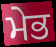
ਮੇਭ